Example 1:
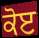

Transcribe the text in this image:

ਕੋੲ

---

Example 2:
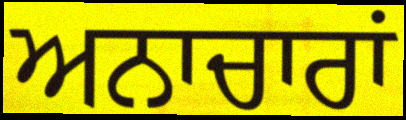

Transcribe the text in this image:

ਅਨਾਚਾਰਾਂ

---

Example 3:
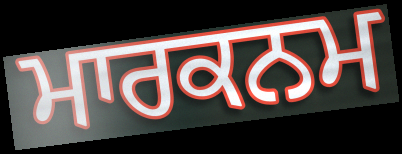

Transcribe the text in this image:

ਮਾਰਕਨਮ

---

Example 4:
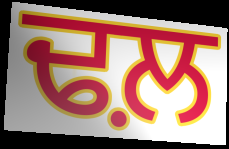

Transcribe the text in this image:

ਢਲ਼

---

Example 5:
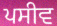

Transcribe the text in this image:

ਪਸੀਵ